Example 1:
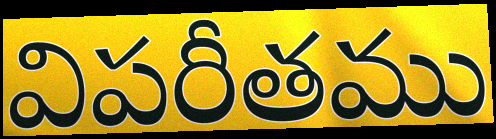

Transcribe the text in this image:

విపరీతము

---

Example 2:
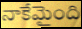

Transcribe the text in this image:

నాకేమైంది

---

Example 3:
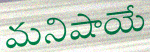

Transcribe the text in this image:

మనిషాయే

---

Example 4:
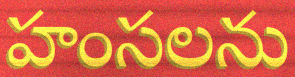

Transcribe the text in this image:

హంసలను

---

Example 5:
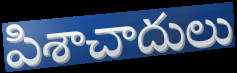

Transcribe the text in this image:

పిశాచాదులు